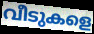
വീടുകളെ